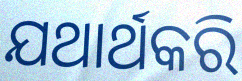
ଯଥାର୍ଥକରି